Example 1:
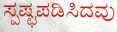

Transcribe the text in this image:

ಸ್ಪಷ್ಟಪಡಿಸಿದವು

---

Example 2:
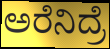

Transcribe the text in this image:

ಅರೆನಿದ್ರೆ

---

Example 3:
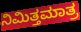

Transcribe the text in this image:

ನಿಮಿತ್ತಮಾತ್ರ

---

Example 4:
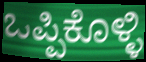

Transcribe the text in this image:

ಒಪ್ಪಿಕೊಳ್ಳಿ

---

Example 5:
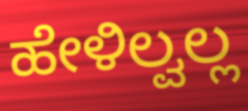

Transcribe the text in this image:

ಹೇಳಿಲ್ವಲ್ಲ